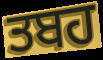
ਤਬਹ